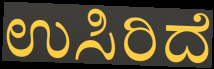
ಉಸಿರಿದೆ